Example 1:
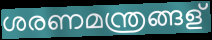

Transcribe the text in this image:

ശരണമന്ത്രങ്ങള്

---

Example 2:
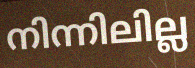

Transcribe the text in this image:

നിന്നിലില്ല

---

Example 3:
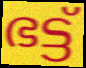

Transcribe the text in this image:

ഭട്ട്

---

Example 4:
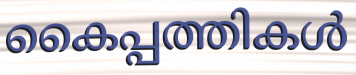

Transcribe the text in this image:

കൈപ്പത്തികൾ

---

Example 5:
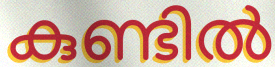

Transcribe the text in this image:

കുണ്ടിൽ